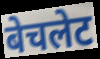
बेचलेट